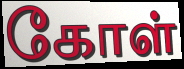
கோள்